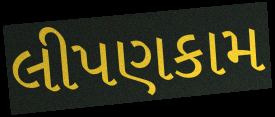
લીપણકામ